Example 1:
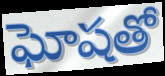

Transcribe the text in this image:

ఘోషతో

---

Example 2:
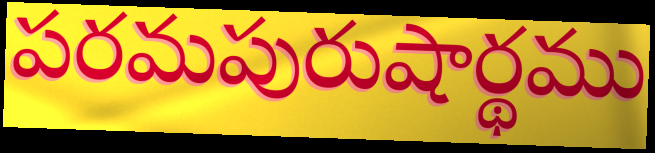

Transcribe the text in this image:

పరమపురుషార్థము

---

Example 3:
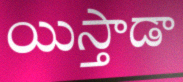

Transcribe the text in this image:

యిస్తాడా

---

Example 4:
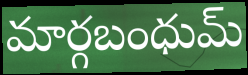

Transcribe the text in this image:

మార్గబంధుమ్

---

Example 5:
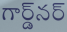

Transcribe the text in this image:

గార్డ్‌నర్